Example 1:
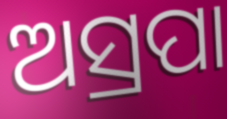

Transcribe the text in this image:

ଅସ୍ରପା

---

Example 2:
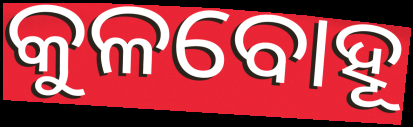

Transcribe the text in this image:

କୁଳବୋହୂ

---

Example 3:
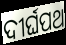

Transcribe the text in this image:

ଦୀର୍ଘପଥ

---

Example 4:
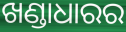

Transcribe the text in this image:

ଖଣ୍ଡାଧାରର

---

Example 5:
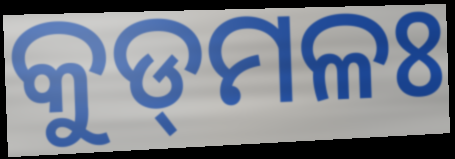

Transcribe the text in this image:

କୁଡ୍‌ମଳଃ